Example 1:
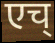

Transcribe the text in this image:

एच्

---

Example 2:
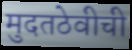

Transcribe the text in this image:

मुदतठेवीची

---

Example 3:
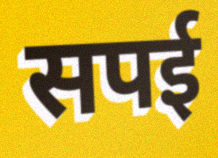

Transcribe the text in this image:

सपई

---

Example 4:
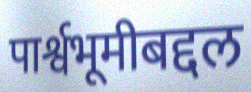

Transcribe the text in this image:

पार्श्वभूमीबद्दल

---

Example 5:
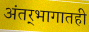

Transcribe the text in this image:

अंतर्भागातही